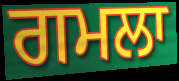
ਗਮਲਾ